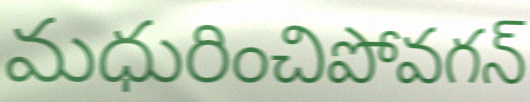
మధురించిపోవగన్